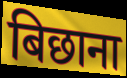
बिछाना